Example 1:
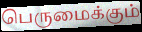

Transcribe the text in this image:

பெருமைக்கும்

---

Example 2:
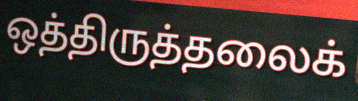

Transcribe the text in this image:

ஒத்திருத்தலைக்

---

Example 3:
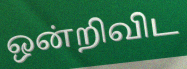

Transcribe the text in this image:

ஒன்றிவிட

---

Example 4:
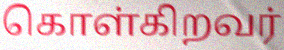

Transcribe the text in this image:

கொள்கிறவர்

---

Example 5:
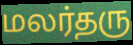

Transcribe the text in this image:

மலர்தரு